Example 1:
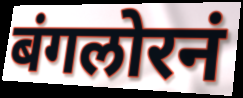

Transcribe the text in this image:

बंगलोरनं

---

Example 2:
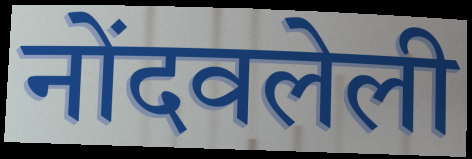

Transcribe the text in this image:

नोंदवलेली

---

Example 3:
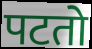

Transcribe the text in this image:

पटतो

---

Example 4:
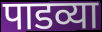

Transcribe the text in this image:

पाडव्या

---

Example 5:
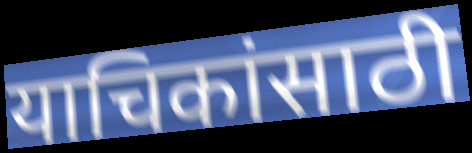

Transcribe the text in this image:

याचिकांसाठी